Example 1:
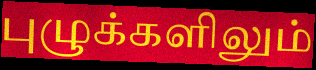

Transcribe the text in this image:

புழுக்களிலும்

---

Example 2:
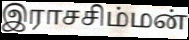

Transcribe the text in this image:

இராசசிம்மன்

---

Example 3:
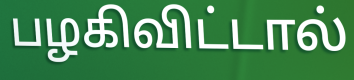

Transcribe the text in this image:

பழகிவிட்டால்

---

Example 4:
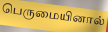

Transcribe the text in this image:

பெருமையினால்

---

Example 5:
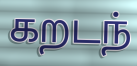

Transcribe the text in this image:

கறடந்